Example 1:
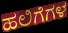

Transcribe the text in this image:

ಹಲಿಗೆಗಳ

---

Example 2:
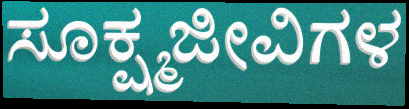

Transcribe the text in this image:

ಸೂಕ್ಷ್ಮಜೀವಿಗಳ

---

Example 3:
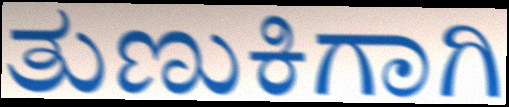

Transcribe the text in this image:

ತುಣುಕಿಗಾಗಿ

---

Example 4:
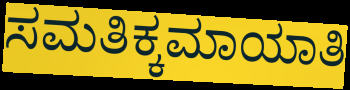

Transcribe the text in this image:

ಸಮತಿಕ್ಕಮಾಯಾತಿ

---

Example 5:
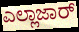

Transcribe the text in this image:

ಎಲ್ಲಾಜಾರ್